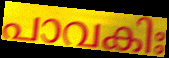
പാവകിഃ